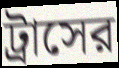
ট্রাসের